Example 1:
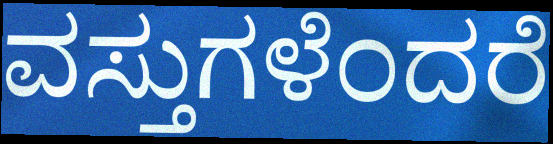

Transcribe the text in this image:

ವಸ್ತುಗಳೆಂದರೆ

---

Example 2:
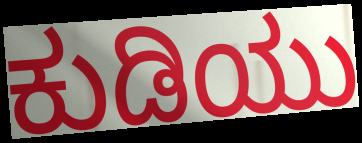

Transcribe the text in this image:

ಕುಡಿಯು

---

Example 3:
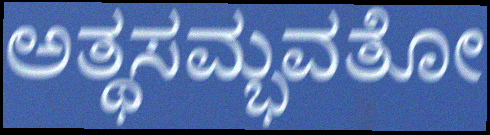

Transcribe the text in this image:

ಅತ್ಥಸಮ್ಭವತೋ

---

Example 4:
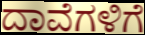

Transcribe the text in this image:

ದಾವೆಗಳಿಗೆ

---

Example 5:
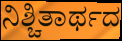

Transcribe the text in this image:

ನಿಶ್ಚಿತಾರ್ಥದ